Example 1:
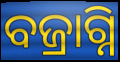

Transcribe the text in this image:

ବଜ୍ରାଗ୍ନି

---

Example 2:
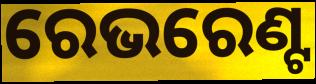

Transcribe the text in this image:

ରେଭରେଣ୍ଟ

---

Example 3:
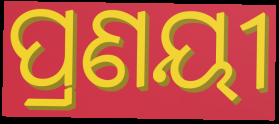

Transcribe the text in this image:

ପ୍ରଣୟୀ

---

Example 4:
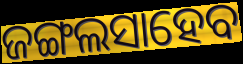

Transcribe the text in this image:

ଜଙ୍ଗଲସାହେବ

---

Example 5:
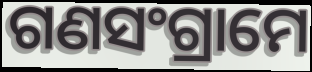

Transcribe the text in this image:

ଗଣସଂଗ୍ରାମେ